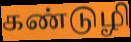
கண்டுழி